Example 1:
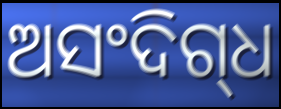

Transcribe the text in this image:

ଅସଂଦିଗ୍‌ଧ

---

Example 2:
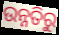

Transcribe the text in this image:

ଉନ୍ନତିରୁ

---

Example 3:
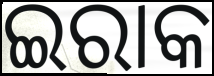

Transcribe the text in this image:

ଇରାକ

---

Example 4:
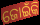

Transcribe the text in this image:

ଜୋଇଁକି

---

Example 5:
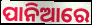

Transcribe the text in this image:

ପାନିଆରେ